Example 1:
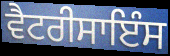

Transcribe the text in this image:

ਵੈਟਰੀਸਾਇੰਸ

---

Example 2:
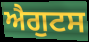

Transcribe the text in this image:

ਐਗੁਟਸ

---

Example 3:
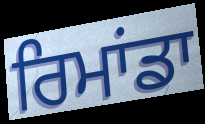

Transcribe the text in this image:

ਰਿਮਾਂਡਾ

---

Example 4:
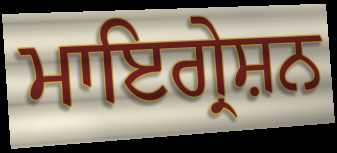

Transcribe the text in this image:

ਮਾਇਗ੍ਰੇਸ਼ਨ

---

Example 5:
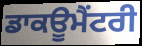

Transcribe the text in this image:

ਡਾਕਊਮੈਂਟਰੀ